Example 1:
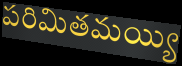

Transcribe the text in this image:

పరిమితమయ్యి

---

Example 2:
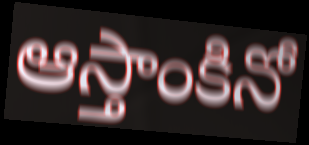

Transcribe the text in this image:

ఆస్తాంకినో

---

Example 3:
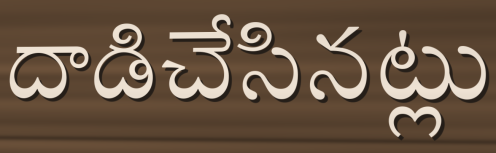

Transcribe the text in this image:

దాడిచేసినట్లు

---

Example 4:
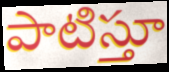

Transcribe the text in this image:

పాటిస్తూ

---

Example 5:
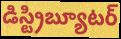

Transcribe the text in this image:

డిస్ట్రిబ్యూటర్